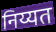
निय्यत